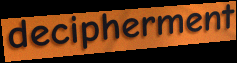
decipherment